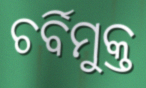
ଚର୍ବିମୁକ୍ତ